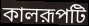
কালরূপটি